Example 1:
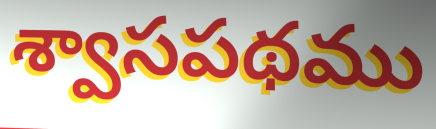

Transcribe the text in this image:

శ్వాసపథము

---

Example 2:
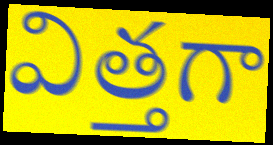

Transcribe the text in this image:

విత్తగా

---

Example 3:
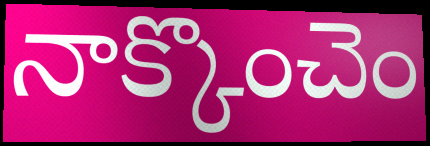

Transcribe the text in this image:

నాక్కొంచెం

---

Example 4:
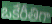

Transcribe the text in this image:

ఒకేరీతిగా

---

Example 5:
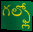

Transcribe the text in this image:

గల్ఫ్లో